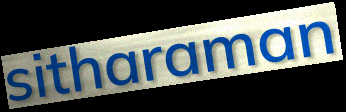
sitharaman